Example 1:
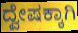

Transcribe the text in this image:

ದ್ವೇಷಕ್ಕಾಗಿ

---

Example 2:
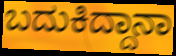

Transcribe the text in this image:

ಬದುಕಿದ್ದಾನಾ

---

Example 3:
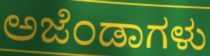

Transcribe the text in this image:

ಅಜೆಂಡಾಗಳು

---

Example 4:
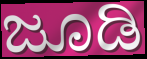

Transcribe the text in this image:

ಜೂಡಿ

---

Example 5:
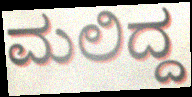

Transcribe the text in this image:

ಮಲಿದ್ದ